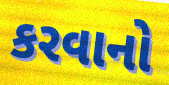
કરવાનો